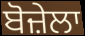
ਬੋਜ਼ੇਲਾ